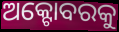
ଅକ୍ଟୋବରକୁ